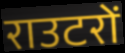
राउटरों